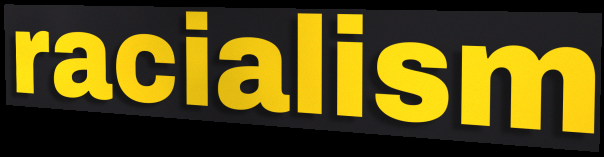
racialism